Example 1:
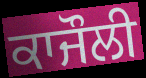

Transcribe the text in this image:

ਕਾਜੌਲੀ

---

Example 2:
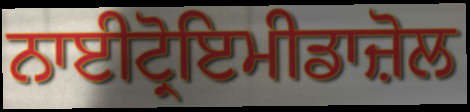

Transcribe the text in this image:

ਨਾਈਟ੍ਰੋਇਮੀਡਾਜ਼ੋਲ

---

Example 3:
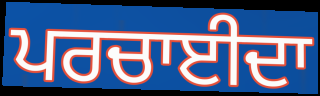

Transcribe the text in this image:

ਪਰਚਾਈਦਾ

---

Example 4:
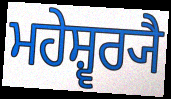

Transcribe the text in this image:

ਮਹੇਸ਼੍ਵਰ੍ਯੈ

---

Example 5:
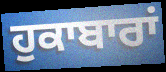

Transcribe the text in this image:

ਹੁਕਾਬਾਰਾਂ